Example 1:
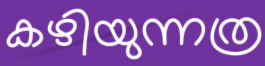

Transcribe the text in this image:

കഴിയുന്നത്ര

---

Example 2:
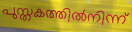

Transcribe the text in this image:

പുസ്തകത്തിൽനിന്ന്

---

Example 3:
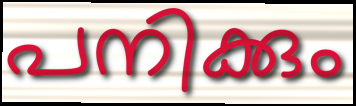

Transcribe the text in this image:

പനിക്കും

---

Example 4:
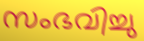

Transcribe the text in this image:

സംഭവിച്ചു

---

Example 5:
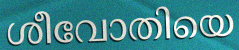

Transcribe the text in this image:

ശീവോതിയെ